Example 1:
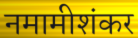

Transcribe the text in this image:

नमामीशंकर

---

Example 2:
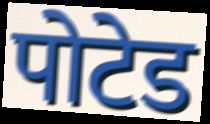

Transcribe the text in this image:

पोटेड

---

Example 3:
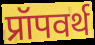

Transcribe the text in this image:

प्रॉपवर्थ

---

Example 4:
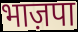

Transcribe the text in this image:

भाज़पा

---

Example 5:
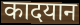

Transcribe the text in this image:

कादयान